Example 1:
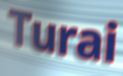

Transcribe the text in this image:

Turai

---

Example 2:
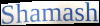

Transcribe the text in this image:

Shamash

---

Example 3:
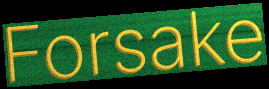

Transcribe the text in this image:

Forsake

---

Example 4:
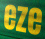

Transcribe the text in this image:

eze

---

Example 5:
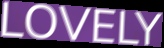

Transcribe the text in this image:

LOVELY